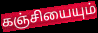
கஞ்சியையும்